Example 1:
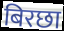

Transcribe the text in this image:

बिरछा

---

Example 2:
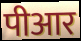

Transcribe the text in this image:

पीआर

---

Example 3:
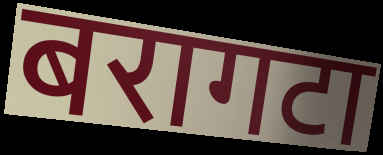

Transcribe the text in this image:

बरागटा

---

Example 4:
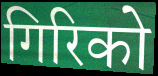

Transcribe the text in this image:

गिरिको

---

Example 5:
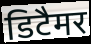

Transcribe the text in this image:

डिटैमर